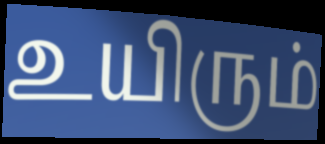
உயிரும்